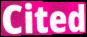
Cited